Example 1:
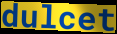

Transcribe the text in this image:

dulcet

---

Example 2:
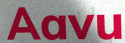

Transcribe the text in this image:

Aavu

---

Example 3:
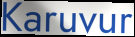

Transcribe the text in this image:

Karuvur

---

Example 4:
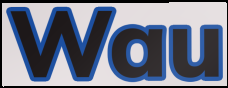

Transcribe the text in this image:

Wau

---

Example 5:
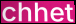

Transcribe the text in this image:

chhet